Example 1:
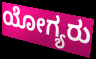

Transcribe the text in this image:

ಯೋಗ್ಯರು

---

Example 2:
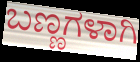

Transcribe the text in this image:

ಬಣ್ಣಗಳಾಗಿ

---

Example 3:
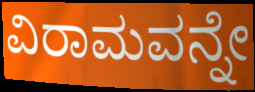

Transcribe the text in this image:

ವಿರಾಮವನ್ನೇ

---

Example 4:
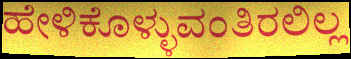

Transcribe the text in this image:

ಹೇಳಿಕೊಳ್ಳುವಂತಿರಲಿಲ್ಲ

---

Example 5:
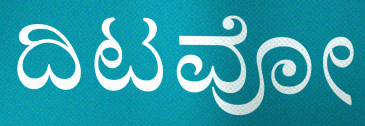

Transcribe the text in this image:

ದಿಟವೋ